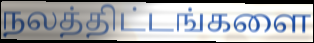
நலத்திட்டங்களை